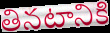
తినటానికి